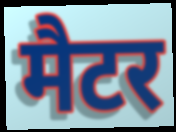
मैटर